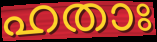
ഹതാഃ